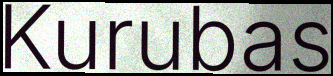
Kurubas